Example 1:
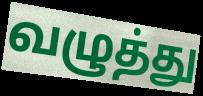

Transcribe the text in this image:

வழுத்து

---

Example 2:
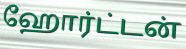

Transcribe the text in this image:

ஹோர்ட்டன்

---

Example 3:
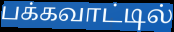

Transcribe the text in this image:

பக்கவாட்டில்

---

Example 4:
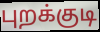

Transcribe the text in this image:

புறக்குடி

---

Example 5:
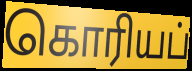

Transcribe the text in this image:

கொரியப்